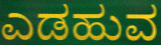
ಎಡಹುವ